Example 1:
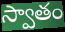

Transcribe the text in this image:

స్వాతం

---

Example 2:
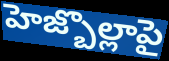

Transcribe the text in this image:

హెజ్బొల్లాపై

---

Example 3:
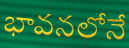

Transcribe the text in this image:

భావనలోనే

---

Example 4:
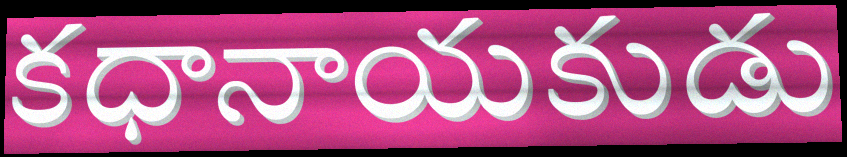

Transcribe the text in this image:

కధానాయకుడు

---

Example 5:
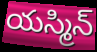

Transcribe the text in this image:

యస్మిన్